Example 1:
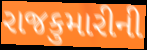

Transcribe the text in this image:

રાજકુમારીની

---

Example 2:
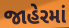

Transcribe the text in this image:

જાહેરમાં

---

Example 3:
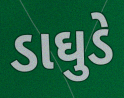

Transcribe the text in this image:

ડાઘુડે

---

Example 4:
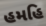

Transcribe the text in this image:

હમહિ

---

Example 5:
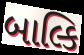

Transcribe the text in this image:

બાલ્કિ